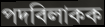
পদবিলাকক